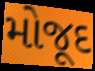
મોજૂદ